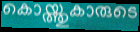
കൊയ്ത്തുകാരുടെ